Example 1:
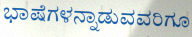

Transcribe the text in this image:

ಭಾಷೆಗಳನ್ನಾಡುವವರಿಗೂ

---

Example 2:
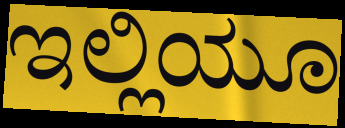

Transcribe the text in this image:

ಇಲ್ಲಿಯೂ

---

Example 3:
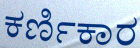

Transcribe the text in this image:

ಕರ್ಣಿಕಾರ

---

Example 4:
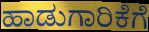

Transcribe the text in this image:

ಹಾಡುಗಾರಿಕೆಗೆ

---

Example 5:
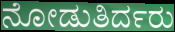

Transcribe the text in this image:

ನೋಡುತಿರ್ದರು